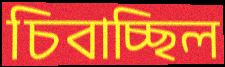
চিবাচ্ছিল